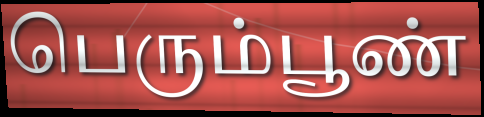
பெரும்பூண்